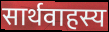
सार्थवाहस्य